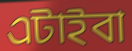
এটাইবা